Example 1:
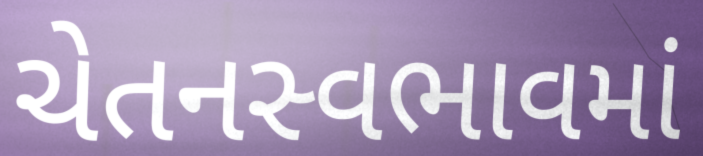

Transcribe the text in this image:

ચેતનસ્વભાવમાં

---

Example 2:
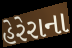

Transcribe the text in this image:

હેરેરાના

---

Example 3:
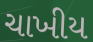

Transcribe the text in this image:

ચાખીય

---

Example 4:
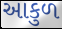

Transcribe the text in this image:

આકુળ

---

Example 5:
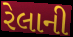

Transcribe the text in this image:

રેલાની